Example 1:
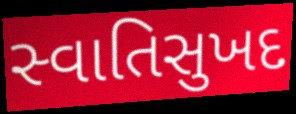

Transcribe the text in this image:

સ્વાતિસુખદ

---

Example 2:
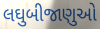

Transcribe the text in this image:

લઘુબીજાણુઓ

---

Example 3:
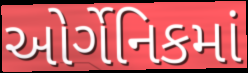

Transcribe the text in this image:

ઓર્ગેનિકમાં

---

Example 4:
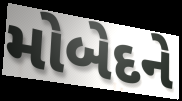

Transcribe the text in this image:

મોબેદને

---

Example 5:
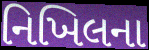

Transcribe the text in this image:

નિખિલના